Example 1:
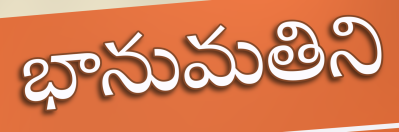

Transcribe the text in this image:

భానుమతిని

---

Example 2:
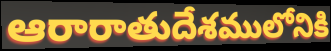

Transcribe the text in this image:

ఆరారాతుదేశములోనికి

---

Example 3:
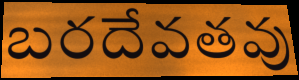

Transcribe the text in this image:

బరదేవతవు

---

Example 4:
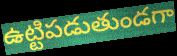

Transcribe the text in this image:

ఉట్టిపడుతుండగా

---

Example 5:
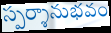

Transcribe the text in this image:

స్పర్శానుభవం